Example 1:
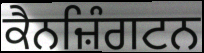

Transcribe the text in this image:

ਕੈਨਜ਼ਿੰਗਟਨ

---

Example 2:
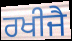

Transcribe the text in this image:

ਰਖੀਜੈ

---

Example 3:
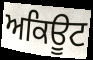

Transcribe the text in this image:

ਅਕਿਊਟ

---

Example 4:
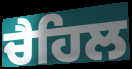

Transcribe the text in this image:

ਚੈਹਿਲ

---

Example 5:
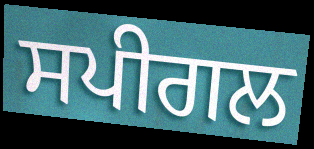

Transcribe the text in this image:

ਸਪੀਗਲ